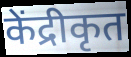
केंद्रीकृत